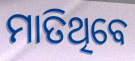
ମାତିଥିବେ